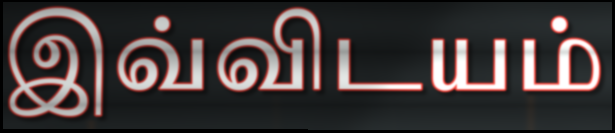
இவ்விடயம்